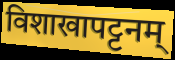
विशाखापट्टनम्